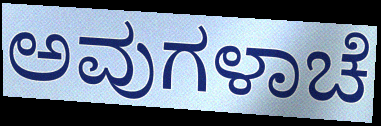
ಅವುಗಳಾಚೆ